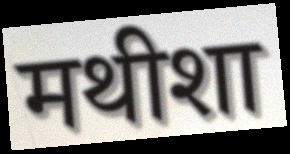
मथीशा